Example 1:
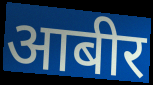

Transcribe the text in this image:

आबीर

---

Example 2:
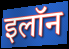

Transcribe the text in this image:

इलॉन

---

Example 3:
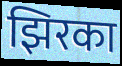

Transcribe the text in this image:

झिरका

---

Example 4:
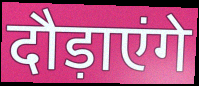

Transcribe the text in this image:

दौड़ाएंगे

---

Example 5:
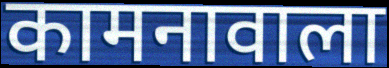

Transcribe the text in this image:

कामनावाला